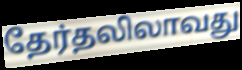
தேர்தலிலாவது